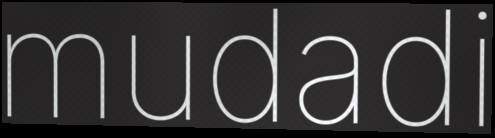
mudadi